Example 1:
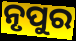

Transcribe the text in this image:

ନୃପୁର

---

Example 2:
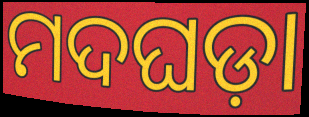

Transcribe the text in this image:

ମଦଘଡ଼ା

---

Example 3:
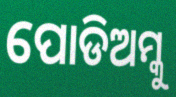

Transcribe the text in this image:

ପୋଡିଅମ୍କୁ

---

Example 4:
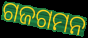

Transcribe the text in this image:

ଗଜଗମନ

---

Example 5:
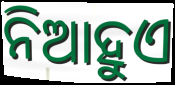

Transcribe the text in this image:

ନିଆହୁଏ